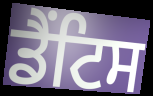
ਡੈਂਟਿਸ